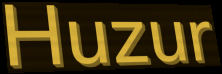
Huzur